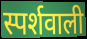
स्पर्शवाली